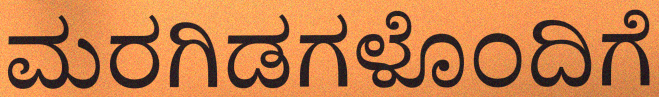
ಮರಗಿಡಗಳೊಂದಿಗೆ